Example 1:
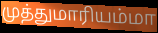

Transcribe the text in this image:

முத்துமாரியம்மா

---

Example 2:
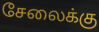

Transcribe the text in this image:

சேலைக்கு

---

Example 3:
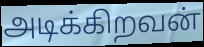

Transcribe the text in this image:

அடிக்கிறவன்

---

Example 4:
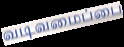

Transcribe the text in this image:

வடிவமைப்பை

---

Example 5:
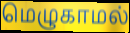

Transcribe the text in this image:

மெழுகாமல்